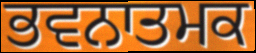
ਭਵਨਾਤਮਕ